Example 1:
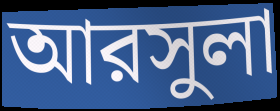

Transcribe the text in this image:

আরসুলা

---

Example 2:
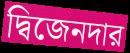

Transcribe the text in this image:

দ্বিজেনদার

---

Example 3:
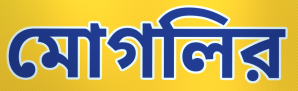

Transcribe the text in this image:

মোগলির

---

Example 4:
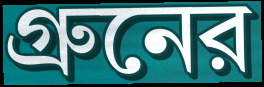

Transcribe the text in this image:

গ্রুনের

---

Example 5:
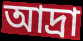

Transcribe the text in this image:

আদ্রা